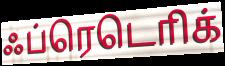
ஃப்ரெடெரிக்